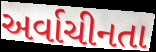
અર્વાચીનતા